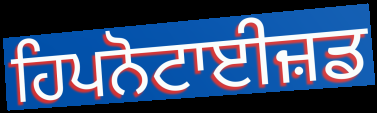
ਹਿਪਨੋਟਾਈਜ਼ਡ